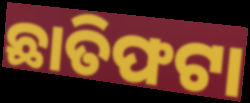
ଛାତିଫଟା